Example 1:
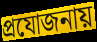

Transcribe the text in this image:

প্রযোজনায়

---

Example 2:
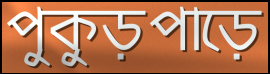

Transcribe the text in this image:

পুকুড়পাড়ে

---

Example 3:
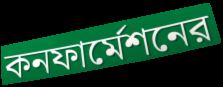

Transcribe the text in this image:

কনফার্মেশনের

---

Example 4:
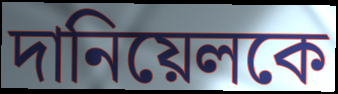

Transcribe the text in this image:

দানিয়েলকে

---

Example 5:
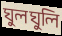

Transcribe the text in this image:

ঘুলঘুলি